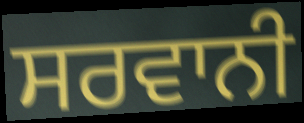
ਸਰਵਾਨੀ